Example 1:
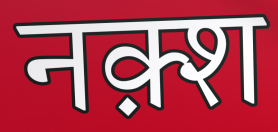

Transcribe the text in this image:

नक़्श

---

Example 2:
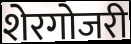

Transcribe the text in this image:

शेरगोजरी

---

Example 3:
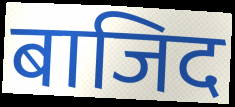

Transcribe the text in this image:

बाजिद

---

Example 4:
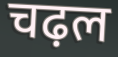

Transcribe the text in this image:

चढ़ल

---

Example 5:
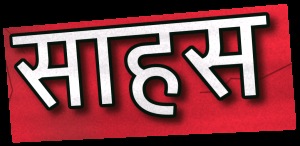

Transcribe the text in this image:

साहस